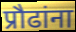
प्रौढांना